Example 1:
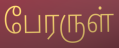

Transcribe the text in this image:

பேரருள்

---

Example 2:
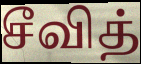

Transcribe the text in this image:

சீவித்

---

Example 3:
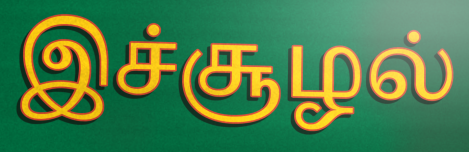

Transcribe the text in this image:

இச்சூழல்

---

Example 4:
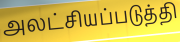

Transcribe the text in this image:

அலட்சியப்படுத்தி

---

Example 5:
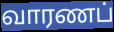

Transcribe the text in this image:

வாரணப்